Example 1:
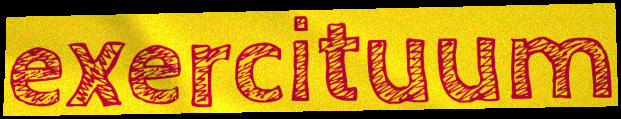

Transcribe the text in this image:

exercituum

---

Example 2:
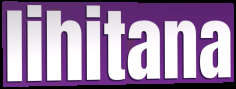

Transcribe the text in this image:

lihitana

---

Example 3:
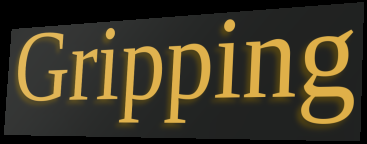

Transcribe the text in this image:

Gripping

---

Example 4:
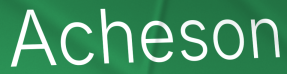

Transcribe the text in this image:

Acheson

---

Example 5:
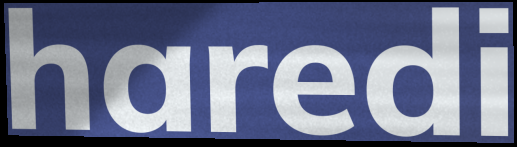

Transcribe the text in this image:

haredi